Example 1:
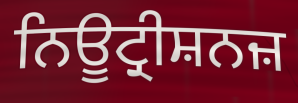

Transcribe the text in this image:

ਨਿਊਟ੍ਰੀਸ਼ਨਜ਼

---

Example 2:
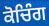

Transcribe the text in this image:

ਕੋਚਿੰਗ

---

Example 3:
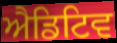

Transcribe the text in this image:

ਐਡਿਟਿਵ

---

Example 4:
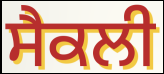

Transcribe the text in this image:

ਸੈਕਲੀ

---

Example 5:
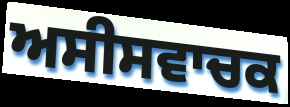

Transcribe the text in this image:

ਅਸੀਸਵਾਚਕ